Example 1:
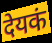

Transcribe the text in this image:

देयकं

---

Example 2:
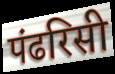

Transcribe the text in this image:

पंढरिसी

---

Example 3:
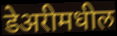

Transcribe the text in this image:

डेअरीमधील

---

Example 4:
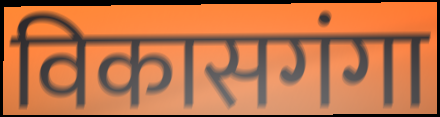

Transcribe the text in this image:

विकासगंगा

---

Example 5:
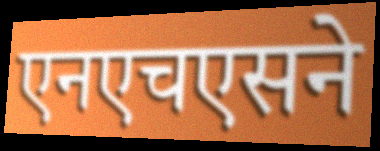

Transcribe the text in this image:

एनएचएसने